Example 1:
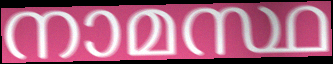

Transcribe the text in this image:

നാമസ്ഥ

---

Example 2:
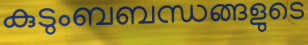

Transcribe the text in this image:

കുടുംബബന്ധങ്ങളുടെ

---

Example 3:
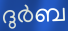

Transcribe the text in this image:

ദുർബ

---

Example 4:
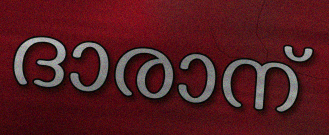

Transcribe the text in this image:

ദാരാന്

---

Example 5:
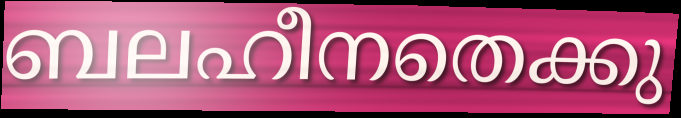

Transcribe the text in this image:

ബലഹീനതെക്കു